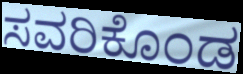
ಸವರಿಕೊಂಡ